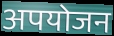
अपयोजन